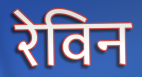
रेविन